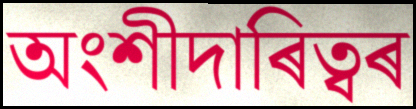
অংশীদাৰিত্বৰ